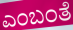
ಎಂಬಂತೆ